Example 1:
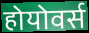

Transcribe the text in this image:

होयोवर्स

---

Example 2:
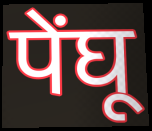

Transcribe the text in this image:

पेंघू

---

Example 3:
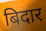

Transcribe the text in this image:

बिदार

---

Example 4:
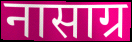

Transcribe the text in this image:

नासाग्र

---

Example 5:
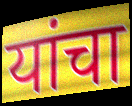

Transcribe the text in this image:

यांचा